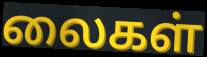
லைகள்